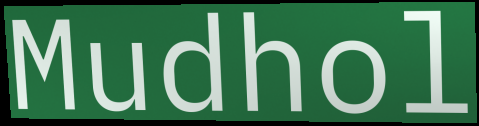
Mudhol